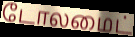
டோலமைட்